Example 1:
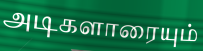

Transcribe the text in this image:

அடிகளாரையும்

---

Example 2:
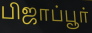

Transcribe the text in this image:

பிஜாப்பூர்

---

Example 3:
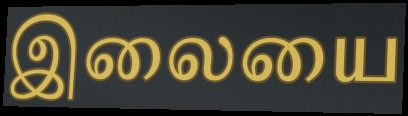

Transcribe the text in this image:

இலையை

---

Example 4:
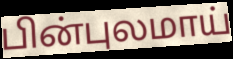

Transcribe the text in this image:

பின்புலமாய்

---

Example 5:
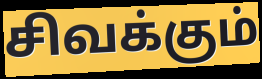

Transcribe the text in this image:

சிவக்கும்